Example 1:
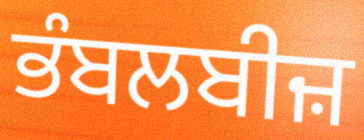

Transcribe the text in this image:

ਭੰਬਲਬੀਜ਼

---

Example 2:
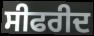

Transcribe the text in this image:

ਸੀਫਰੀਦ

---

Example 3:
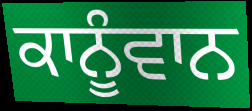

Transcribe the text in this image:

ਕਾਨੂੰਵਾਨ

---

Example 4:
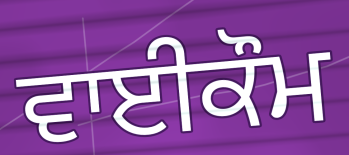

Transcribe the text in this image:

ਵਾਈਕੌਮ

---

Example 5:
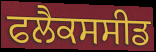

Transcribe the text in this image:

ਫਲੈਕਸਸੀਡ